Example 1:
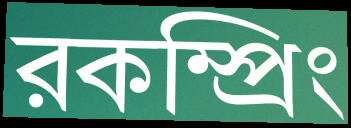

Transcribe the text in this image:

রকম্প্রিং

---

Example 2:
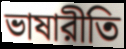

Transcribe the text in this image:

ভাষারীতি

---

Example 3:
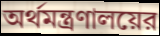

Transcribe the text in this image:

অর্থমন্ত্রণালয়ের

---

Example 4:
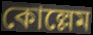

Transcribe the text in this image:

কোল্লেম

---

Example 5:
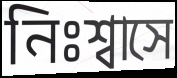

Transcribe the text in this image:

নিঃশ্বাসে